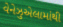
વેનેઝુએલામાંથી